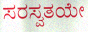
ಸರಸ್ವತಯೇ